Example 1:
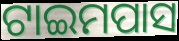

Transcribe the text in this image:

ଟାଇମପାସ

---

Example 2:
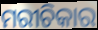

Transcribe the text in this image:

ମରୀଚିକାର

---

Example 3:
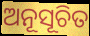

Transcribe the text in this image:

ଅନୂସୂଚିତ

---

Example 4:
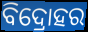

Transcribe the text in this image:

ବିଦ୍ରୋହର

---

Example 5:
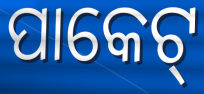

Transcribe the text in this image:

ପାକେଟ୍